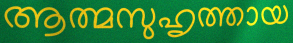
ആത്മസുഹൃത്തായ